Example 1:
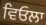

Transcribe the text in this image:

ਵਿਓਲਾ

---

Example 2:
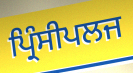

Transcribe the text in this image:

ਪ੍ਰਿੰਸੀਪਲਜ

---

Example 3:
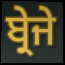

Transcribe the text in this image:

ਬ੍ਰੇਜੇ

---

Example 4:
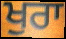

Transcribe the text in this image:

ਖੁਰਾ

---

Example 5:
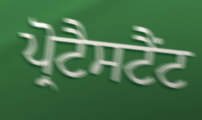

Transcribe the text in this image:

ਪ੍ਰੋਟੈਸਟੈਂਟ